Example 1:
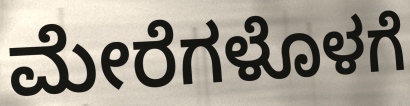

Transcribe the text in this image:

ಮೇರೆಗಳೊಳಗೆ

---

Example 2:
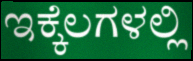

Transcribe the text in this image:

ಇಕ್ಕೆಲಗಳಲ್ಲಿ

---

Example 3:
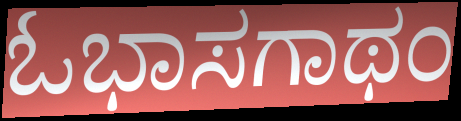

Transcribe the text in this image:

ಓಭಾಸಗಾಥಂ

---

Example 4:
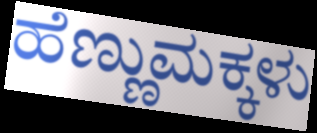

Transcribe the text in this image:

ಹೆಣ್ಣುಮಕ್ಕಳು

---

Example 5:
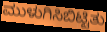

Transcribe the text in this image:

ಮುಳುಗಿಸಿಬಿಟ್ಟಿತು